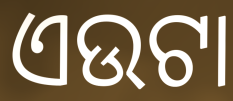
ଏଉଟା